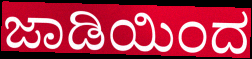
ಜಾಡಿಯಿಂದ